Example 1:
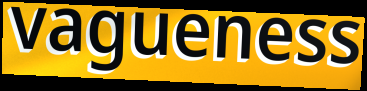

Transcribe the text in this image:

vagueness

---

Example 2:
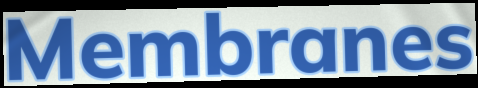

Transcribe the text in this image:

Membranes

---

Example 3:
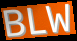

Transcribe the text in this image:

BLW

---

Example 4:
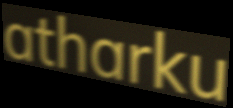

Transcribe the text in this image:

atharku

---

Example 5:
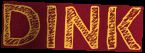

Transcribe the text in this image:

DINK